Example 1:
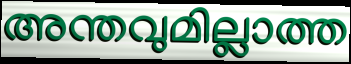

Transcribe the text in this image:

അന്തവുമില്ലാത്ത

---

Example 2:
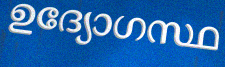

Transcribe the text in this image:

ഉദ്യോഗസ്ഥ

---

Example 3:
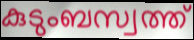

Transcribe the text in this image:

കുടുംബസ്വത്ത്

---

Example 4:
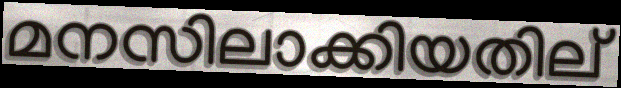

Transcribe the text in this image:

മനസിലാക്കിയതില്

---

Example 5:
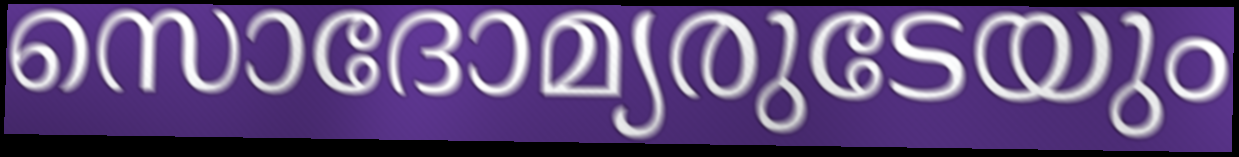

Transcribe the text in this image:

സൊദോമ്യരുടേയും